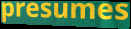
presumes